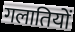
गलातियों